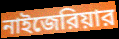
নাইজেরিয়ার